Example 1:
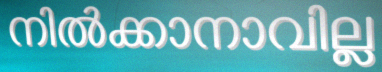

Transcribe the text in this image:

നിൽക്കാനാവില്ല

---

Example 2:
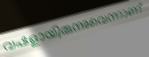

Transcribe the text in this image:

വഷളായിരുന്നുവെന്നാണ്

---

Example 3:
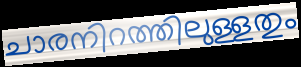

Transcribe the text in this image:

ചാരനിറത്തിലുള്ളതും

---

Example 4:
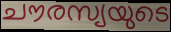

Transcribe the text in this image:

ചൗരസ്യയുടെ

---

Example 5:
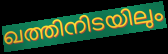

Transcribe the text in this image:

ഖത്തിനിടയിലും